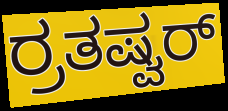
ರ್ರತಷ್ವರ್